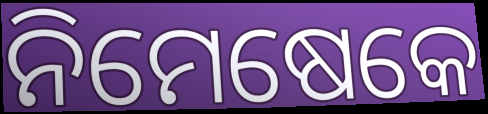
ନିମେଷେକେ